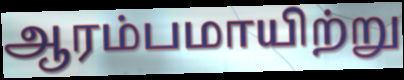
ஆரம்பமாயிற்று